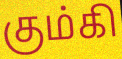
கும்கி